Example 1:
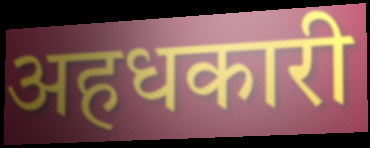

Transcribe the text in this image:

अहधकारी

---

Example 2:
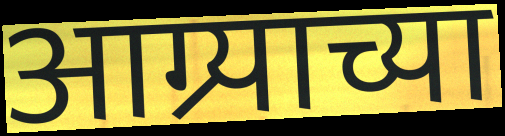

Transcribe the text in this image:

आग्र्याच्या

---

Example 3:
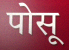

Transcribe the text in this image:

पोसू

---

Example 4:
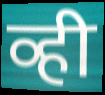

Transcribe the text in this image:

व्ही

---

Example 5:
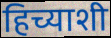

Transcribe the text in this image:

हिच्याशी